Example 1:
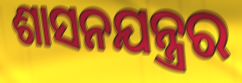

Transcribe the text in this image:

ଶାସନଯନ୍ତ୍ରର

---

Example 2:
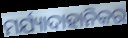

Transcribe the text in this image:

ମର୍ଯ୍ୟାଦାହାନିକର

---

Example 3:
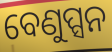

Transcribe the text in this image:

ବେଣୁପ୍ସନ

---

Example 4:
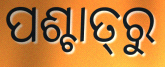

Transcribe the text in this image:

ପଶ୍ଚାତ୍‌ରୁ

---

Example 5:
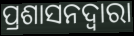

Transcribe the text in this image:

ପ୍ରଶାସନଦ୍ୱାରା